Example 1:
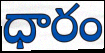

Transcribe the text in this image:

ధారం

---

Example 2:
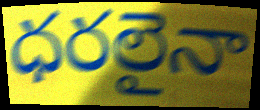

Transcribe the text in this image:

ధరలైనా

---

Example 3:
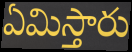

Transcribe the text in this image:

ఏమిస్తారు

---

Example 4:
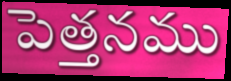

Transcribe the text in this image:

పెత్తనము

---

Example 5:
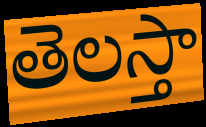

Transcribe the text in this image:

తెలస్తా